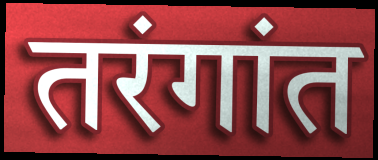
तरंगांत